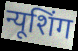
न्यूशिंग